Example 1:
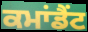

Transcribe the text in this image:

ਕਮਾਂਡੈਂਟ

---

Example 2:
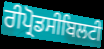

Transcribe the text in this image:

ਰੀਪ੍ਰੋਡਸੀਬਿਲਟੀ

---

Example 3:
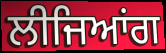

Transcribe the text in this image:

ਲੀਜਿਆਂਗ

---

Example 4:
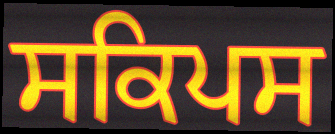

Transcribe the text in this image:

ਸਕਿਪਸ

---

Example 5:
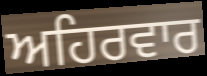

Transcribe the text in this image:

ਅਹਿਰਵਾਰ